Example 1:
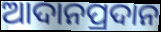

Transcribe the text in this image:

ଆଦାନପ୍ରଦାନ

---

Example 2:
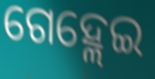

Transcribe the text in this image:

ଗେହ୍ଲେଇ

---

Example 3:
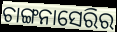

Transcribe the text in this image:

ଚାଙ୍ଗନାସେରିର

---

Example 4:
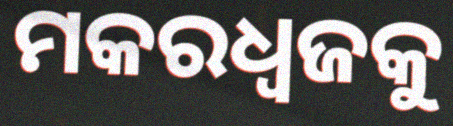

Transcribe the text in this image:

ମକରଧ୍ୱଜକୁ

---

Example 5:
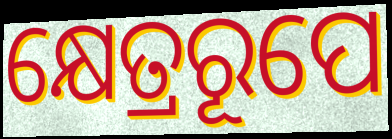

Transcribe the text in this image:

କ୍ଷେତ୍ରରୂପେ